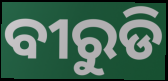
ବୀରୁଡି